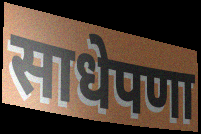
साधेपणा